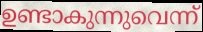
ഉണ്ടാകുന്നുവെന്ന്